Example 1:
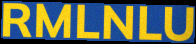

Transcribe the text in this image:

RMLNLU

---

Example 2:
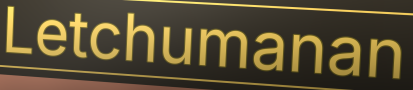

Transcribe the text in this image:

Letchumanan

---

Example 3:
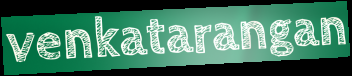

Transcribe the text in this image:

venkatarangan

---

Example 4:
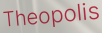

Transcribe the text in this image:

Theopolis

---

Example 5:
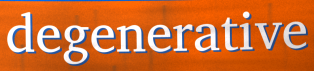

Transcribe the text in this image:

degenerative